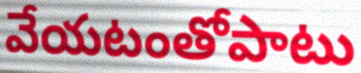
వేయటంతోపాటు